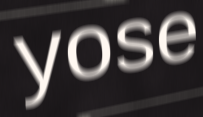
yose